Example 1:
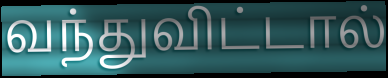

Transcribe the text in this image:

வந்துவிட்டால்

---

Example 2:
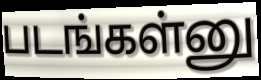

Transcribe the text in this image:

படங்கள்னு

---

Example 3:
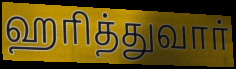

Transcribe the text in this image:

ஹரித்துவார்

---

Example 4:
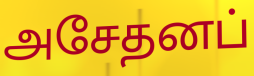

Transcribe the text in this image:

அசேதனப்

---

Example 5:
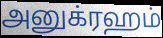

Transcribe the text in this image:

அனுக்ரஹம்